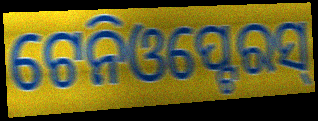
ଟେନିଓପ୍ଟେରସ୍